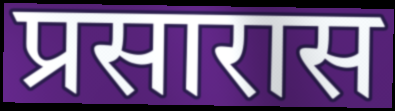
प्रसारास